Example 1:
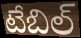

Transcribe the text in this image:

టేబిల్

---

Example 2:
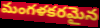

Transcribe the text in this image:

మంగళకరమైన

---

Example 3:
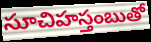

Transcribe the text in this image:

సూచిహస్తంబుతో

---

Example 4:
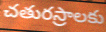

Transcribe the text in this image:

చతురస్రాలకు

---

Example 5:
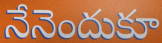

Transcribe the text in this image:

నేనెందుకూ